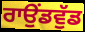
ਰਾਉਂਡਵੁੱਡ